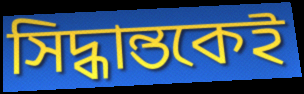
সিদ্ধান্তকেই